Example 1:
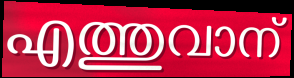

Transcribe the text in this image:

എത്തുവാന്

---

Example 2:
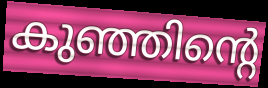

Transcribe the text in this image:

കുഞ്ഞിന്റെ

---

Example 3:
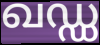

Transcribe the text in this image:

ഖഡ്ഡ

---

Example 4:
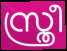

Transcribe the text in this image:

സ്ത്രീ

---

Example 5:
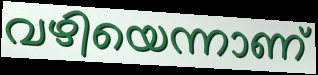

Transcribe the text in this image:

വഴിയെന്നാണ്